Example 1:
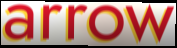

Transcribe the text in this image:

arrow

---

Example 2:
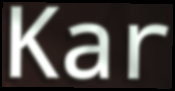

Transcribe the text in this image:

Kar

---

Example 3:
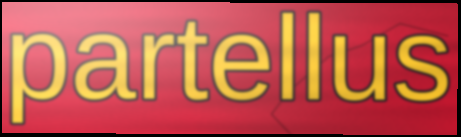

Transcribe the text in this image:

partellus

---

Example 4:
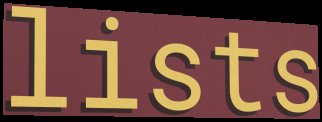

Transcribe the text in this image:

lists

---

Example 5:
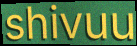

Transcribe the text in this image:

shivuu